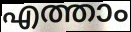
എത്താം